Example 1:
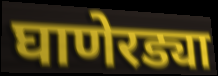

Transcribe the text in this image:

घाणेरड्या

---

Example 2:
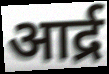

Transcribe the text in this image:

आर्द्र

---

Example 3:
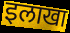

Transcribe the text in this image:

इलाखा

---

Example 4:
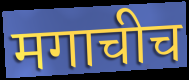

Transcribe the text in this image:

मगाचीच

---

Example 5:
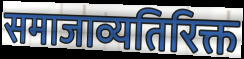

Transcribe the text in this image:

समाजाव्यतिरिक्त